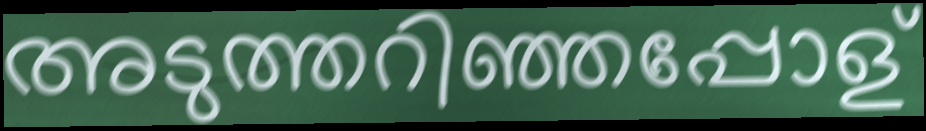
അടുത്തറിഞ്ഞപ്പോള്